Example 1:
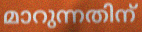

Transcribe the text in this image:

മാറുന്നതിന്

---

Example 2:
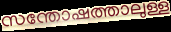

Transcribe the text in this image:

സന്തോഷത്താലുള്ള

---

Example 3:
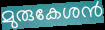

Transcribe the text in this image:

മുരുകേശൻ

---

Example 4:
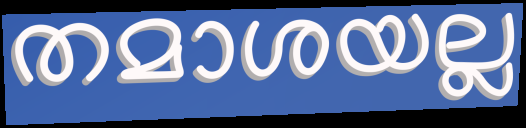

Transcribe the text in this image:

തമാശയല്ല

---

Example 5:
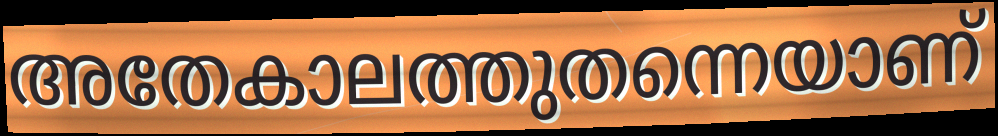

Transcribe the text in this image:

അതേകാലത്തുതന്നെയാണ്